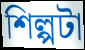
শিল্পটা